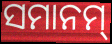
ସମାନମ୍